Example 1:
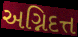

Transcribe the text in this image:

અગ્નિદત્ત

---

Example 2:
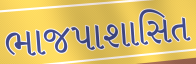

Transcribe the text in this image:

ભાજપાશાસિત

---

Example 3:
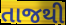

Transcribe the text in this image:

તાજથી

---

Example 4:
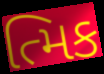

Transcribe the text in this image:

ત્મિક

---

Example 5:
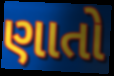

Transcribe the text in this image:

ણાતો